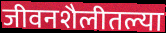
जीवनशैलीतल्या